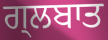
ਗ੍ਲਬਾਤ